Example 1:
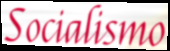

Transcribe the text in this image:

Socialismo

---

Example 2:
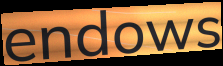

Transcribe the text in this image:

endows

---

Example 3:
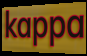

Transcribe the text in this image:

kappa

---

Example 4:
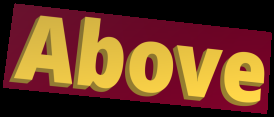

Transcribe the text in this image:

Above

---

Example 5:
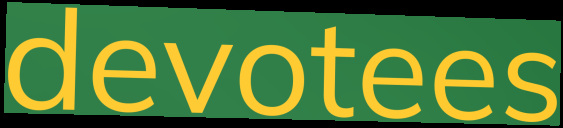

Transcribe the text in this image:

devotees